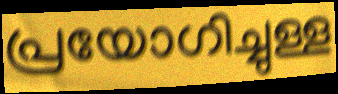
പ്രയോഗിച്ചുള്ള